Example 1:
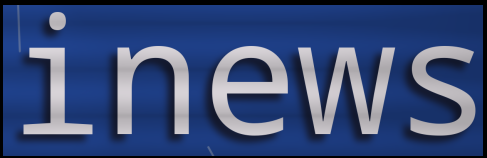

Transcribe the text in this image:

inews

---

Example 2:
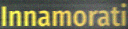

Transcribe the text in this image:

Innamorati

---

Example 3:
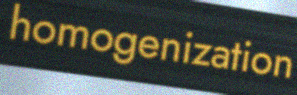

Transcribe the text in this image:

homogenization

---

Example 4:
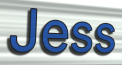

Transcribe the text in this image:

Jess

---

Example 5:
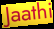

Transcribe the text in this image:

Jaathi